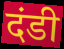
दंडी